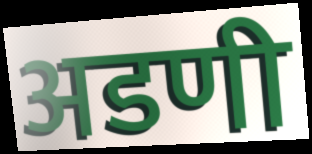
अडणी